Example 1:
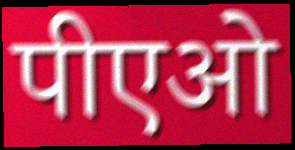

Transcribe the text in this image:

पीएओ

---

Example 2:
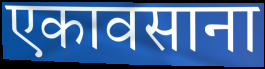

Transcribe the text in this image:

एकावसाना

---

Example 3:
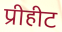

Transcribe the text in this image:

प्रीहीट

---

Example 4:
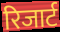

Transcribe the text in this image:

रिजार्ट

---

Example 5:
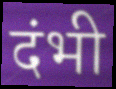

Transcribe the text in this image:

दंभी